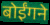
बोईंगने